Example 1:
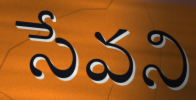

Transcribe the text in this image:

సేవని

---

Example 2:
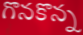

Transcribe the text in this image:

గొనకొన్న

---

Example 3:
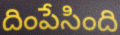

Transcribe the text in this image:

దింపేసింది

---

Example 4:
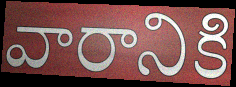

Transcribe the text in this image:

వారానికి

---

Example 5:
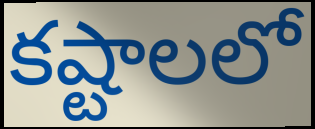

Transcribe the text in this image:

కష్టాలలో